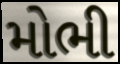
મોભી